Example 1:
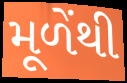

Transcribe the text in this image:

મૂળેંથી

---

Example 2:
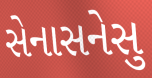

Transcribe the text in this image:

સેનાસનેસુ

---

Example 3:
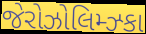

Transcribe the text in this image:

જેરોઝોલિમ્ઝ્કા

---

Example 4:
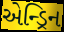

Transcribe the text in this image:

એન્ડ્રિન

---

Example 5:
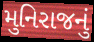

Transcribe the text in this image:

મુનિરાજનું